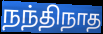
நந்திநாத